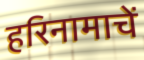
हरिनामाचें